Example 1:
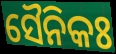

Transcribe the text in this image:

ସୈନିକଃ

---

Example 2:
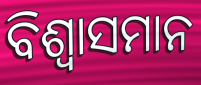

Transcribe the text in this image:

ବିଶ୍ଵାସମାନ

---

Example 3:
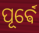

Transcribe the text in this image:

ପୂର୍ଵେ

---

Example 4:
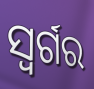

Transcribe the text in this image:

ସ୍ୱର୍ଗର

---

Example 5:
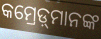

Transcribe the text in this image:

କମ୍ରେଡ଼୍‌ମାନଙ୍କ